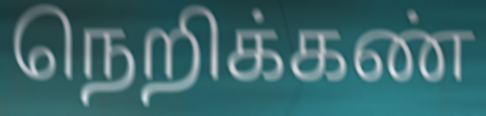
நெறிக்கண்